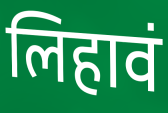
लिहावं